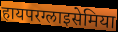
हायपरग्लाइसेमिया